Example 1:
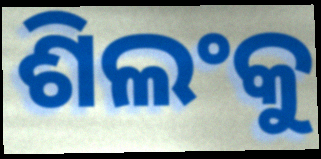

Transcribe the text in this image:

ଶିଲଂକୁ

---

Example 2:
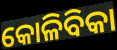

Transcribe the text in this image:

କୋଳିବିକା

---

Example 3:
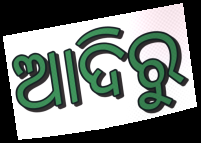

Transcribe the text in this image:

ଆଦିରୁ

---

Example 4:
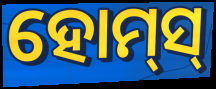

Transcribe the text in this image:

ହୋମ୍‌ସ୍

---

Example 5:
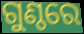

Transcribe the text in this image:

ଗୁଣ୍ଠରେ